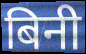
बिनी